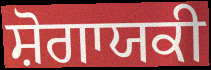
ਸ਼ੋਗਾਯਕੀ